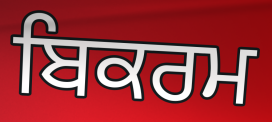
ਬਿਕਰਮ